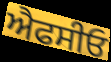
ਐਫਸੀਓ